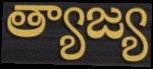
త్యాజ్య